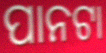
ପାନଟା